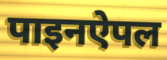
पाइनऐपल